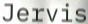
Jervis